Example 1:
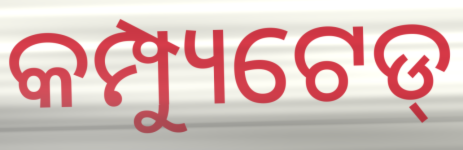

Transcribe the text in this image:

କମ୍ପ୍ୟୁଟେଡ୍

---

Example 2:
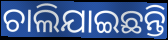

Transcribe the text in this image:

ଚାଲିଯାଇଛନ୍ତି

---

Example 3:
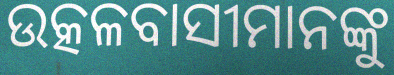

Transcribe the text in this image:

ଉତ୍କଳବାସୀମାନଙ୍କୁ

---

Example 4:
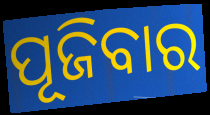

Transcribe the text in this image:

ପୂଜିବାର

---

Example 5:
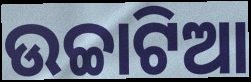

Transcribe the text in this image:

ଉଚ୍ଚାଟିଆ